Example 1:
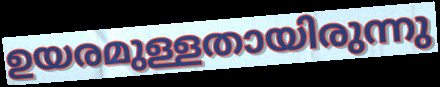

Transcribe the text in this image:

ഉയരമുള്ളതായിരുന്നു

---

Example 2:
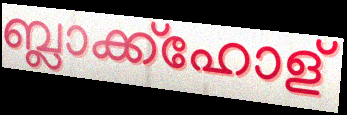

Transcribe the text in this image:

ബ്ലാക്ക്ഹോള്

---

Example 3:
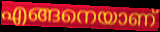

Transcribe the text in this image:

എങ്ങനെയാണ്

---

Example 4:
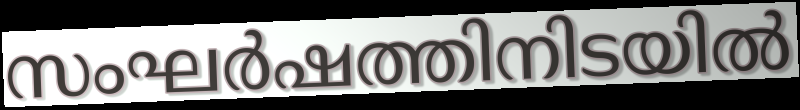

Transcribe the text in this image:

സംഘർഷത്തിനിടയിൽ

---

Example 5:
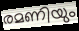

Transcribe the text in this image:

രമണിയും